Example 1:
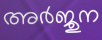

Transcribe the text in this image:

അർജുന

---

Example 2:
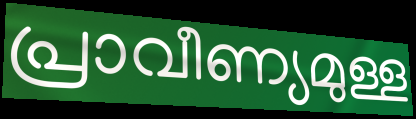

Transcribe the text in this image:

പ്രാവീണ്യമുള്ള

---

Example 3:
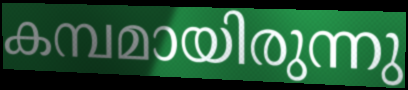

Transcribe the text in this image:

കമ്പമായിരുന്നു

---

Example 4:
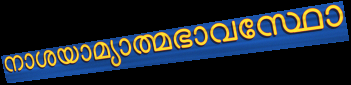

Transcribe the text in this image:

നാശയാമ്യാത്മഭാവസ്ഥോ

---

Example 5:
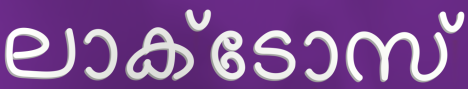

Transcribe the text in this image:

ലാക്ടോസ്